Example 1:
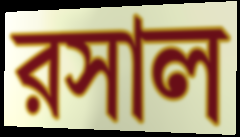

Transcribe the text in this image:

রসাল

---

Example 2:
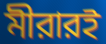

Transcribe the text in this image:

মীরারই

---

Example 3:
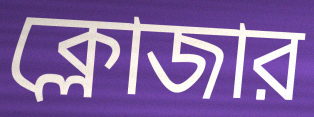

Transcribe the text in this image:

ক্লোজার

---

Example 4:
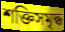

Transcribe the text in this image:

শক্তিসমৃদ্ধ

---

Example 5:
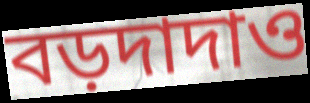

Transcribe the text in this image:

বড়দাদাও